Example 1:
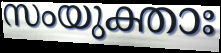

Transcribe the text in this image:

സംയുക്താഃ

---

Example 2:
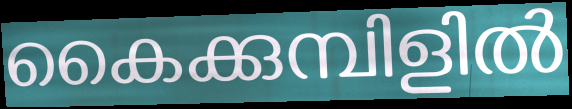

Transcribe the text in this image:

കൈക്കുമ്പിളിൽ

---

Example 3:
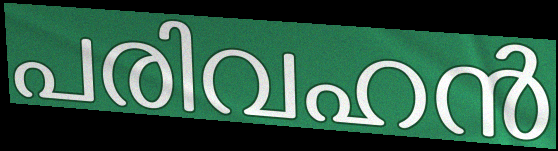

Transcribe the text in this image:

പരിവഹൻ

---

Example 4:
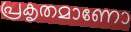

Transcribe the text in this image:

പ്രകൃതമാണോ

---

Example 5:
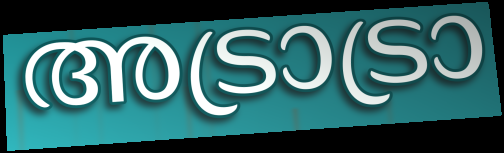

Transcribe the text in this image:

അട്രാട്രാ